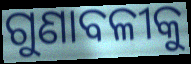
ଗୁଣାବଳୀକୁ